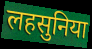
लहसुनिया